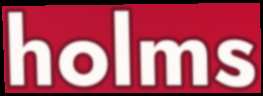
holms